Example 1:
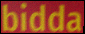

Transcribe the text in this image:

bidda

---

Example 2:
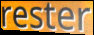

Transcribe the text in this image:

rester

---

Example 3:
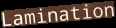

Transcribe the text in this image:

Lamination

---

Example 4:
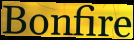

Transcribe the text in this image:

Bonfire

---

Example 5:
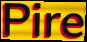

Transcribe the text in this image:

Pire